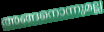
അങ്ങനൊന്നുമല്ല